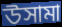
উসামা